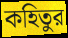
কহিতুর